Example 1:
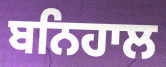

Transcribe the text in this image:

ਬਨਿਹਾਲ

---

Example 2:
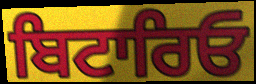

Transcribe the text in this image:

ਬਿਟਾਰਿਓ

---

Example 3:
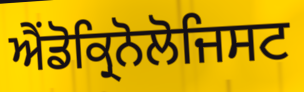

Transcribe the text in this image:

ਐਂਡੋਕ੍ਰਿਨੋਲੋਜਿਸਟ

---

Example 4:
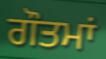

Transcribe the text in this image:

ਗੌਤਮਾਂ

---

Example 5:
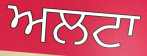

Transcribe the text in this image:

ਅਲਟਾ